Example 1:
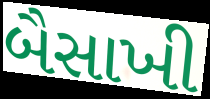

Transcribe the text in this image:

બૈસાખી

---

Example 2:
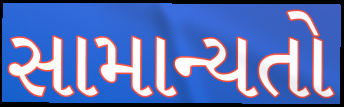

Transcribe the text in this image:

સામાન્યતો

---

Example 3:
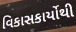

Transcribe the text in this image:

વિકાસકાર્યોથી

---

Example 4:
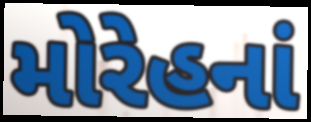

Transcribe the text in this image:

મોરેહનાં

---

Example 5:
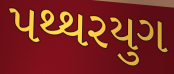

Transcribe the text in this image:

પથ્થરયુગ